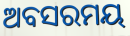
ଅବସରମୟ